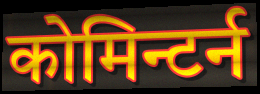
कोमिन्टर्न